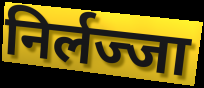
निर्लज्जा